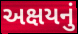
અક્ષયનું